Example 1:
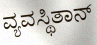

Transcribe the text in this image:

ವ್ಯವಸ್ಥಿತಾನ್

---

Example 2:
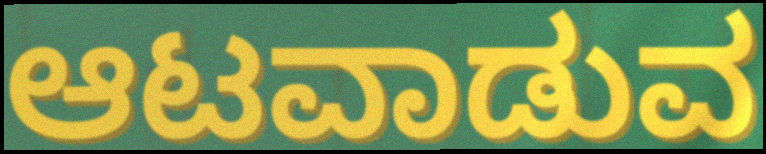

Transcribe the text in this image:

ಆಟವಾಡುವ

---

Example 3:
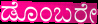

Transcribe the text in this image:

ಡೊಂಬರೇ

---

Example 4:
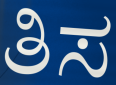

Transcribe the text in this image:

ತಿಸ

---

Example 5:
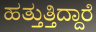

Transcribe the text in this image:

ಹತ್ತುತ್ತಿದ್ದಾರೆ